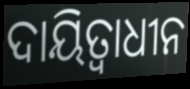
ଦାୟିତ୍ୱାଧୀନ